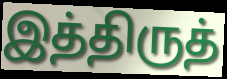
இத்திருத்